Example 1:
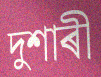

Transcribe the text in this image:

দুশাৰী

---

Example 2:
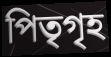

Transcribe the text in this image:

পিতৃগৃহ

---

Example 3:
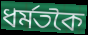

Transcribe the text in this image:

ধৰ্মতকৈ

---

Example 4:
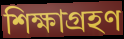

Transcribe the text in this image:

শিক্ষাগ্ৰহণ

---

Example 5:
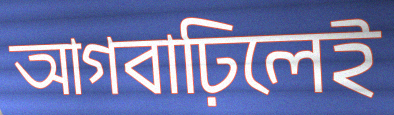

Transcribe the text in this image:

আগবাঢ়িলেই